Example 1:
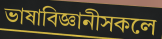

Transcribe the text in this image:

ভাষাবিজ্ঞানীসকলে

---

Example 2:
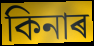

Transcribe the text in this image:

কিনাৰ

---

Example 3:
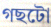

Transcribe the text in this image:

গছটো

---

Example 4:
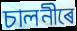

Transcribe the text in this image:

চালনীৰে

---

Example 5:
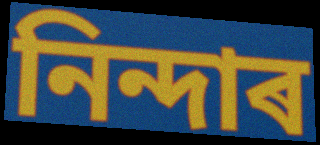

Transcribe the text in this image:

নিন্দাৰ